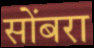
सोंबरा